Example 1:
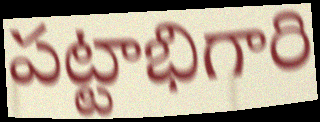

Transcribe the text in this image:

పట్టాభిగారి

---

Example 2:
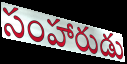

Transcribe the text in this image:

సంహారుడు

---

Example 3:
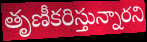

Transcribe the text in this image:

తృణీకరిస్తున్నారని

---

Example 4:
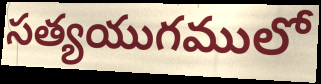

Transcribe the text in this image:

సత్యయుగములో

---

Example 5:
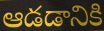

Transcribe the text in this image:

ఆడడానికి